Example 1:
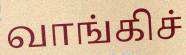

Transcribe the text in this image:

வாங்கிச்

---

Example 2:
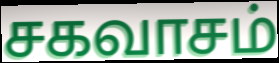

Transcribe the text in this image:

சகவாசம்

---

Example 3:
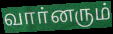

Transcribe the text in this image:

வார்னரும்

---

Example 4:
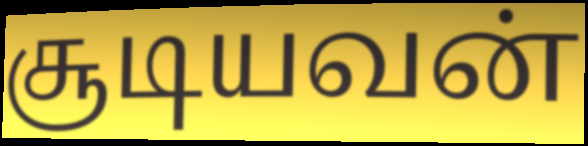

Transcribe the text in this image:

சூடியவன்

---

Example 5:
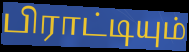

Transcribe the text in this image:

பிராட்டியும்